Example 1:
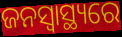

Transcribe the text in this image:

ଜନସ୍ବାସ୍ଥ୍ୟରେ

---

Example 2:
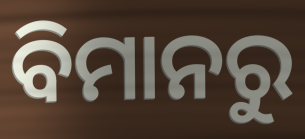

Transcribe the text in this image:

ବିମାନରୁ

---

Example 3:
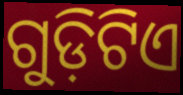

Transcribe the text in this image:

ଗୁଡ଼ିଟିଏ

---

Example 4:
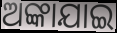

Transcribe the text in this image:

ଅଙ୍କାଯାଇ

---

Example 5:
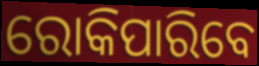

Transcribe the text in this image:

ରୋକିପାରିବେ